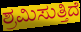
ಶ್ರಮಿಸುತ್ತಿದೆ